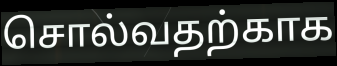
சொல்வதற்காக